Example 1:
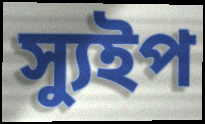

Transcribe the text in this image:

স্যুইপ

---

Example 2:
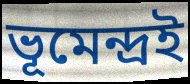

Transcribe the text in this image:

ভূমেন্দ্রই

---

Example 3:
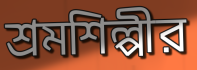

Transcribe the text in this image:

শ্রমশিল্পীর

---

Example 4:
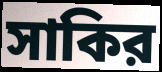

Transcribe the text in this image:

সাকির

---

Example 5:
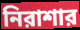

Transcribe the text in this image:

নিরাশার